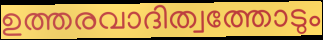
ഉത്തരവാദിത്വത്തോടും